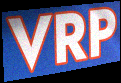
VRP